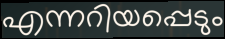
എന്നറിയപ്പെടും